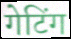
गेटिंग